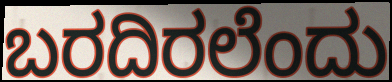
ಬರದಿರಲೆಂದು